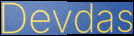
Devdas